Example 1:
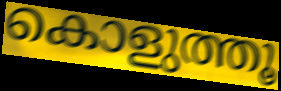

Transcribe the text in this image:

കൊളുത്തൂ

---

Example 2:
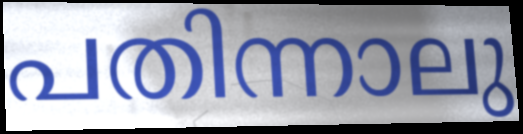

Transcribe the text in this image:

പതിന്നാലു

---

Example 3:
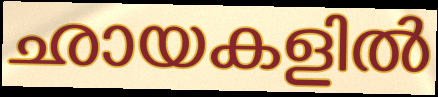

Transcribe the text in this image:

ഛായകളിൽ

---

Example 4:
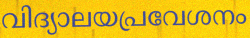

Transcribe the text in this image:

വിദ്യാലയപ്രവേശനം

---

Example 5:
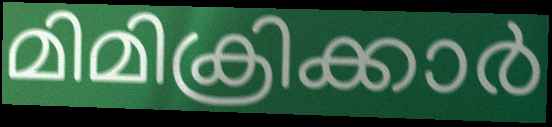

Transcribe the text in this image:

മിമിക്രിക്കാർ